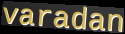
varadan